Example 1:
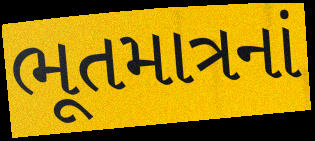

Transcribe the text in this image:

ભૂતમાત્રનાં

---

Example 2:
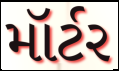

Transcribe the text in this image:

મૉર્ટર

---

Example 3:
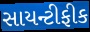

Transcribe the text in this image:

સાયન્ટીફીક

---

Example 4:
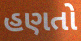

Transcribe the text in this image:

હણતો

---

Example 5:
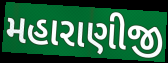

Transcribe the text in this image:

મહારાણીજી